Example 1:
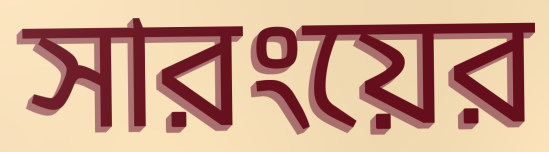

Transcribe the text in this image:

সারংয়ের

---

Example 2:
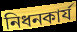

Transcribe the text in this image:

নিধনকার্য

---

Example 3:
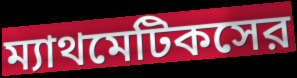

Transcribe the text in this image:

ম্যাথমেটিকসের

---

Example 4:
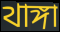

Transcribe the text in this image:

থাঙ্গা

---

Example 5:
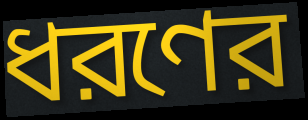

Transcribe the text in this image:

ধরণের